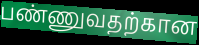
பண்ணுவதற்கான